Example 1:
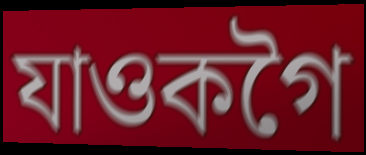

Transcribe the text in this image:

যাওকগৈ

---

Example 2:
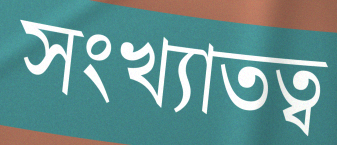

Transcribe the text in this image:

সংখ্যাতত্ব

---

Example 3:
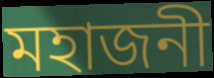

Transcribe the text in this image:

মহাজনী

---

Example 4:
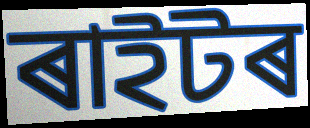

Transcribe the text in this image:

ৰাইটৰ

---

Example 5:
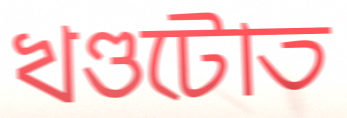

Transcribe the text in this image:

খণ্ডটোত